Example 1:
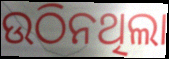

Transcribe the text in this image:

ଉଠିନଥିଲା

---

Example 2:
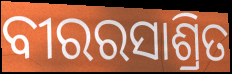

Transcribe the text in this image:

ବୀରରସାଶ୍ରିତ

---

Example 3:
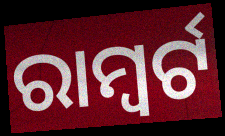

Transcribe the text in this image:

ରାମ୍ବର୍ଟ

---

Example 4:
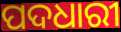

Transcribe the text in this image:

ପଦଧାରୀ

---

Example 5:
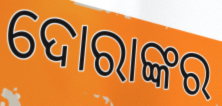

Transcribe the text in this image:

ଦୋରାଙ୍କର